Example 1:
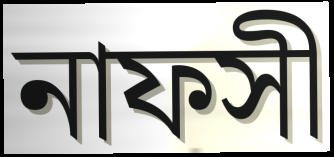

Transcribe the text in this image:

নাফসী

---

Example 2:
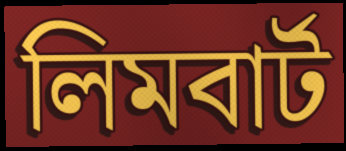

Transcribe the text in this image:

লিমবার্ট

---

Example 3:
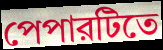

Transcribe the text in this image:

পেপারটিতে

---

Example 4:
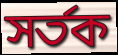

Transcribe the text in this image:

সর্তক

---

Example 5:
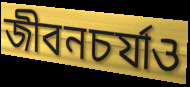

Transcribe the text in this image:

জীবনচর্যাও